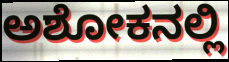
ಅಶೋಕನಲ್ಲಿ